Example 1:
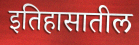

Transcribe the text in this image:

इतिहासातील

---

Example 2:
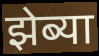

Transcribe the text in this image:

झेब्या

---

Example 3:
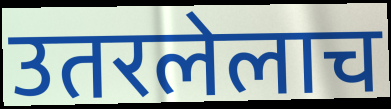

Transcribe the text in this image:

उतरलेलाच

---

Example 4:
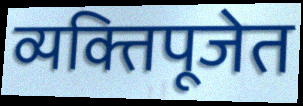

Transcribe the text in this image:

व्यक्तिपूजेत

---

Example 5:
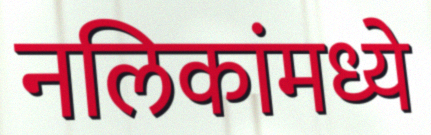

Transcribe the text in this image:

नलिकांमध्ये